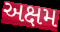
અક્ષમ